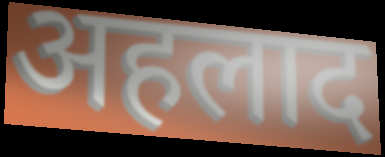
अहलाद